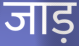
जाड़